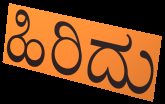
ಹಿರಿದು